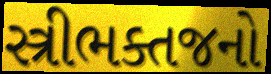
સ્ત્રીભક્તજનો